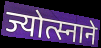
ज्योत्स्नाने